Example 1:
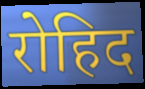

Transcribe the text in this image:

रोहिद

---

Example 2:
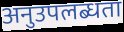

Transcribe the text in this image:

अनुउपलब्धता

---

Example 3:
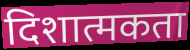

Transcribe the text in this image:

दिशात्मकता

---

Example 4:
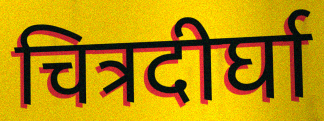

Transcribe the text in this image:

चित्रदीर्घा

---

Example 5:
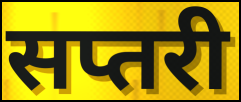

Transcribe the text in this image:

सप्तरी